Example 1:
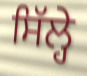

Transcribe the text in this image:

ਸਿੱਲ੍ਹੇ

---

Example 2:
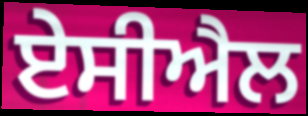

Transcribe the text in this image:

ਏਸੀਐਲ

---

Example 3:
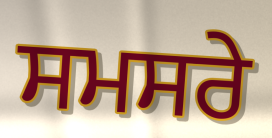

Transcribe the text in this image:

ਸਮਸਰੇ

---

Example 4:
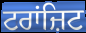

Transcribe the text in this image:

ਟਰਾਂਜ਼ਿਟ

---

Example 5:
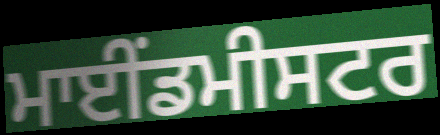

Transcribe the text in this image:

ਮਾਈਂਡਮੀਸਟਰ